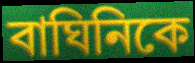
বাঘিনিকে